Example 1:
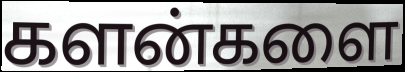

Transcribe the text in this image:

களன்களை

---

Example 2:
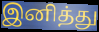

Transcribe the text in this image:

இனித்து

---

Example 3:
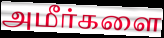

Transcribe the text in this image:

அமீர்களை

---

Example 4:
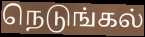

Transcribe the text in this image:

நெடுங்கல்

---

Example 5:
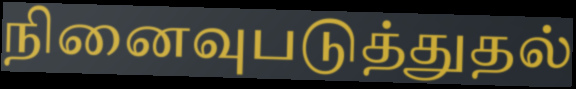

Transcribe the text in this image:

நினைவுபடுத்துதல்